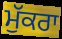
ਮੁੱਕਰਾ